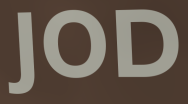
JOD